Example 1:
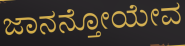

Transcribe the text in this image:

ಜಾನನ್ತೋಯೇವ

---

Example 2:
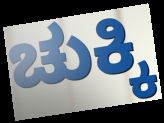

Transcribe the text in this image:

ಚುಕ್ಕಿ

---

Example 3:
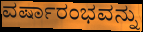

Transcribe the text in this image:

ವರ್ಷಾರಂಭವನ್ನು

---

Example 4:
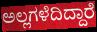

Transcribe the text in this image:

ಅಲ್ಲಗಳೆದಿದ್ದಾರೆ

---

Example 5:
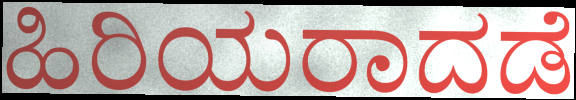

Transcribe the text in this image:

ಹಿರಿಯರಾದಡೆ